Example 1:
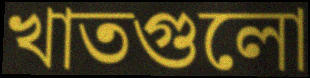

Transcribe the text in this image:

খাতগুলো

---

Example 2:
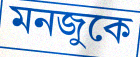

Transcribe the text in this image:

মনজুকে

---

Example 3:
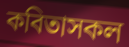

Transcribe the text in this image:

কবিতাসকল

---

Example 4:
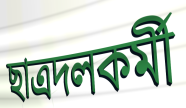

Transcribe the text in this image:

ছাত্রদলকর্মী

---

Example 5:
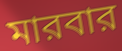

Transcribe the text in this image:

মারবার